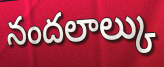
నందలాల్కు